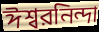
ঈশ্বরনিন্দা